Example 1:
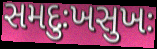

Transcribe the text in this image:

સમદુઃખસુખઃ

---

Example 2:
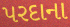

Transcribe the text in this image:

પરદાના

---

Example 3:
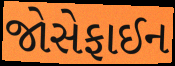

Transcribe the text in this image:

જોસેફાઈન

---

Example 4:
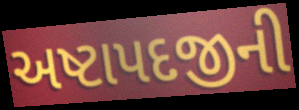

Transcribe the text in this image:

અષ્ટાપદજીની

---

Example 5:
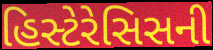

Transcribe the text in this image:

હિસ્ટેરેસિસની